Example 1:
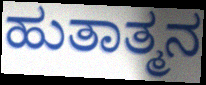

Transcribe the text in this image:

ಹುತಾತ್ಮನ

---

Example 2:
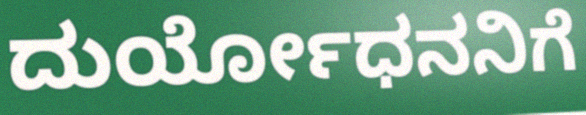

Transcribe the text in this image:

ದುರ್ಯೋಧನನಿಗೆ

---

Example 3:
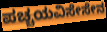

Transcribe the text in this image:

ಪಚ್ಚಯವಿಸೇಸೇನ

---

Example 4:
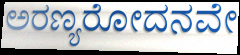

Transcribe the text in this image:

ಅರಣ್ಯರೋದನವೇ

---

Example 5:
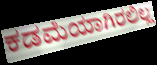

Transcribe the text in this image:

ಕಡಮೆಯಾಗಿರಲಿಲ್ಲ